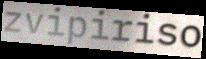
zvipiriso